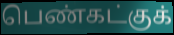
பெண்கட்குக்